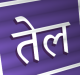
तेल